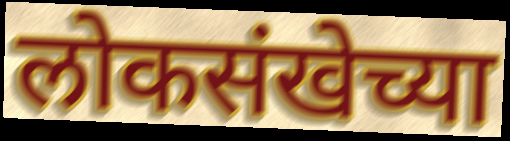
लोकसंखेच्या